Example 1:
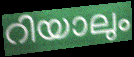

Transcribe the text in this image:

റിയാലും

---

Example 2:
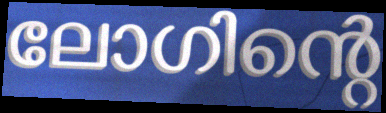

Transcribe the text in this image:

ലോഗിന്റെ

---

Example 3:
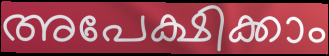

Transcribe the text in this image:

അപേക്ഷിക്കാം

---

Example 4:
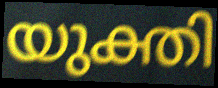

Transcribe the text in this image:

യുക്തി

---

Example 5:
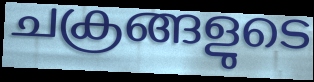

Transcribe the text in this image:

ചക്രങ്ങളുടെ